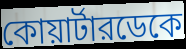
কোয়ার্টারডেকে